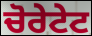
ਚੋਰੇਟੇਟ